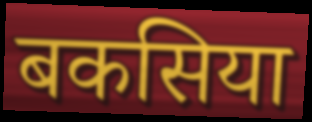
बकसिया